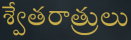
శ్వేతరాత్రులు